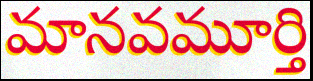
మానవమూర్తి